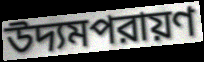
উদ্যমপরায়ণ